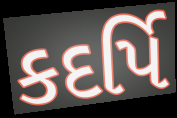
કદર્પિ